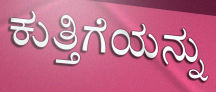
ಕುತ್ತಿಗೆಯನ್ನು